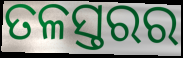
ତଳସ୍ତରର